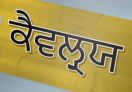
ਕੈਵਲ੍ਰਯ